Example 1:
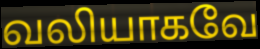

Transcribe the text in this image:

வலியாகவே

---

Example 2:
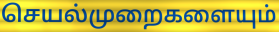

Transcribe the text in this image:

செயல்முறைகளையும்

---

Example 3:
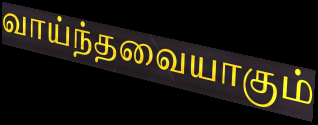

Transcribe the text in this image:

வாய்ந்தவையாகும்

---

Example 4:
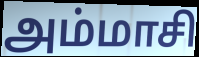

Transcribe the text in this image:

அம்மாசி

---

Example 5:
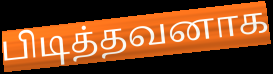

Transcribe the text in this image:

பிடித்தவனாக